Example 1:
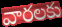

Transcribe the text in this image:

వారలకు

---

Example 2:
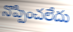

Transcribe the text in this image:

నొప్పించలేదు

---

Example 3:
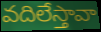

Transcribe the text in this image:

వదిలేస్తావా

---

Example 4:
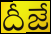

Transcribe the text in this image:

దీజే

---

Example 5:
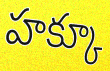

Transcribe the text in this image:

హక్కూ